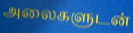
அலைகளுடன்